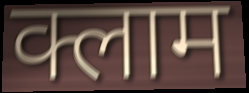
क्लाम